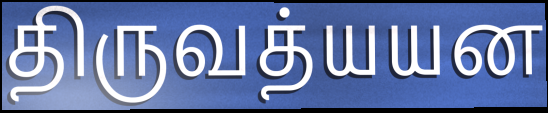
திருவத்யயன